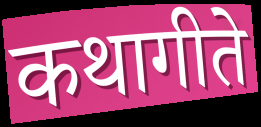
कथागीते